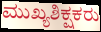
ಮುಖ್ಯಶಿಕ್ಷಕರು